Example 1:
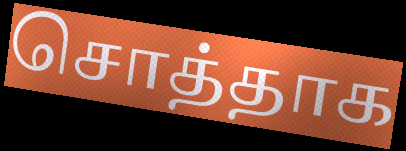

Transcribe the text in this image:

சொத்தாக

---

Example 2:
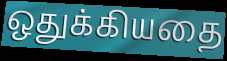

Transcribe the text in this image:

ஒதுக்கியதை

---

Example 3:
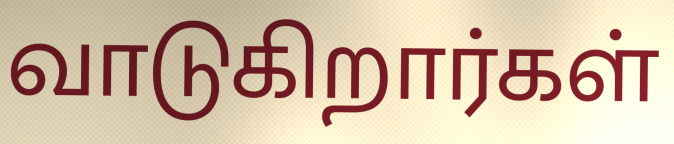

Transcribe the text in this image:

வாடுகிறார்கள்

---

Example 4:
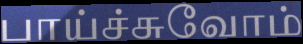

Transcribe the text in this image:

பாய்ச்சுவோம்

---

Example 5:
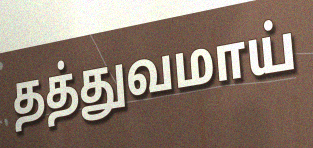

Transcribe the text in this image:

தத்துவமாய்